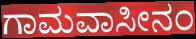
ಗಾಮವಾಸೀನಂ